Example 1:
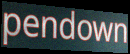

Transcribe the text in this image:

pendown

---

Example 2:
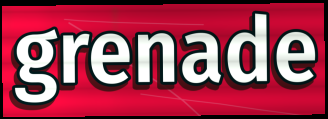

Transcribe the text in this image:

grenade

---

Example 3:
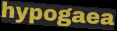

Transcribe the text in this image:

hypogaea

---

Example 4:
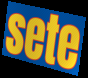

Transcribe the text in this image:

sete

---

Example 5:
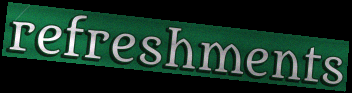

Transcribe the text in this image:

refreshments